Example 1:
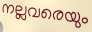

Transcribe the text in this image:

നല്ലവരെയും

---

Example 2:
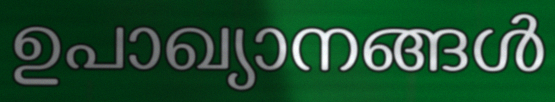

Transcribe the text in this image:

ഉപാഖ്യാനങ്ങൾ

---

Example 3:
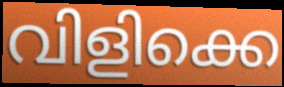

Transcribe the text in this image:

വിളിക്കെ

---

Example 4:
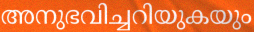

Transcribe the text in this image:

അനുഭവിച്ചറിയുകയും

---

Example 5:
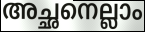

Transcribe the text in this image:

അച്ഛനെല്ലാം